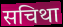
सचिथा